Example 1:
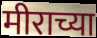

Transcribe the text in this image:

मीराच्या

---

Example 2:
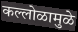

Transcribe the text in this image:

कल्लोळामुळे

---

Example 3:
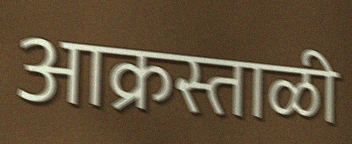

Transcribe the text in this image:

आक्रस्ताळी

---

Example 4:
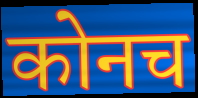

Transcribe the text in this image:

कोनच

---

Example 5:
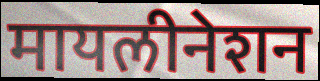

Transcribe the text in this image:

मायलीनेशन